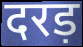
दरड़